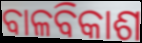
ବାଳବିକାଶ